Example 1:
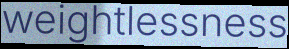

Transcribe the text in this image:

weightlessness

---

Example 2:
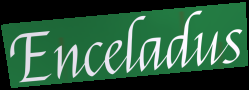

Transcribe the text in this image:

Enceladus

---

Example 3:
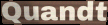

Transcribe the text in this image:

Quandt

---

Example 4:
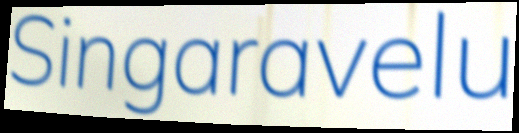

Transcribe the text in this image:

Singaravelu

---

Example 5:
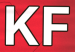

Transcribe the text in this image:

KF